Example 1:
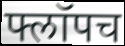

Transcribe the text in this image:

फ्लॉपच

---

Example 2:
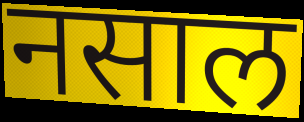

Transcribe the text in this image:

नसाल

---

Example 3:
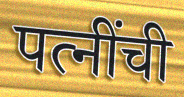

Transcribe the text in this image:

पत्नींची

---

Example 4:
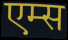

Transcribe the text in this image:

एम्स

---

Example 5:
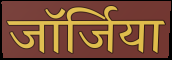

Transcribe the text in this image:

जॉर्जिया